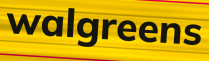
walgreens